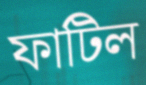
ফাটিল